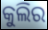
କୁଲିର